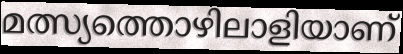
മത്സ്യത്തൊഴിലാളിയാണ്